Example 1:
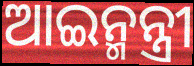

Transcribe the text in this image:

ଆଇନ୍ମନ୍ତ୍ରୀ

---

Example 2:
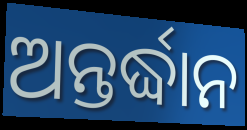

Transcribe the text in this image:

ଅନ୍ତର୍ଦ୍ଧାନ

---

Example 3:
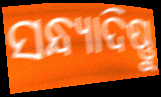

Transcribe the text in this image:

ସନ୍ଧ୍ୟାଦିଷ୍ଣୁ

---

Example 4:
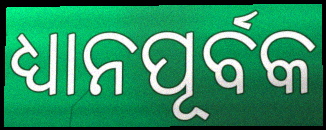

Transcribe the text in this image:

ଧ୍ୟାନପୂର୍ବକ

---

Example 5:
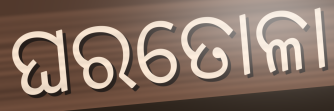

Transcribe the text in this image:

ଘରତୋଳା